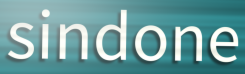
sindone